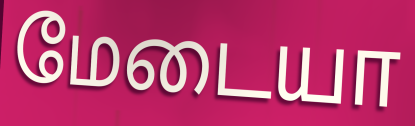
மேடையா